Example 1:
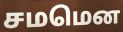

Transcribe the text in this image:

சமமென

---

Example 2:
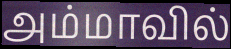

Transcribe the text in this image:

அம்மாவில்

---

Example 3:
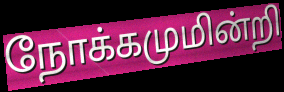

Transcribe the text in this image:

நோக்கமுமின்றி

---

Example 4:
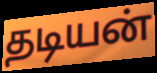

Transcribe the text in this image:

தடியன்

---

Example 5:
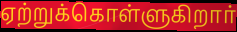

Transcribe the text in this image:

ஏற்றுக்கொள்ளுகிறார்